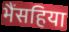
भैंसहिया